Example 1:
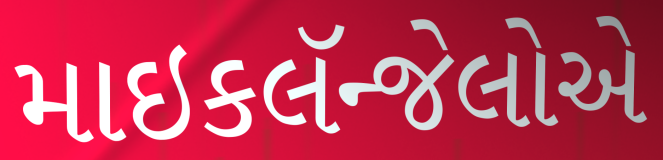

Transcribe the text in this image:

માઇકલૅન્જેલોએ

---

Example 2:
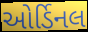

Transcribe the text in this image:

ઓર્ડિનલ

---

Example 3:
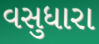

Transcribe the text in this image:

વસુધારા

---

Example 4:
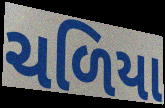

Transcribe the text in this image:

ચળિયા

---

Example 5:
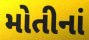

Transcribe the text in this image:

મોતીનાં